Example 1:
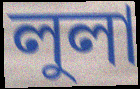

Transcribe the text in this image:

লুলা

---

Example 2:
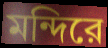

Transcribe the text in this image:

মন্দিরে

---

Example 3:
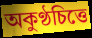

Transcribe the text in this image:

অকুণ্ঠচিত্তে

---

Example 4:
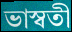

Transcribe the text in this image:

ভাস্বতী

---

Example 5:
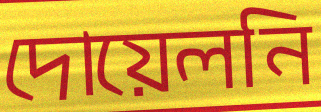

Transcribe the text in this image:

দোয়েলনি